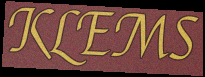
KLEMS